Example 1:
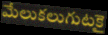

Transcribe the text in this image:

మేలుకలుగుటకై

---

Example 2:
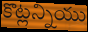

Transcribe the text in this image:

కొట్లన్నియు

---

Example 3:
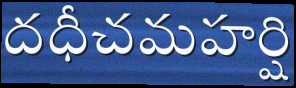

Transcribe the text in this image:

దధీచమహర్షి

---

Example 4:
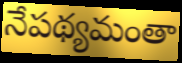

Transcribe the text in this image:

నేపథ్యమంతా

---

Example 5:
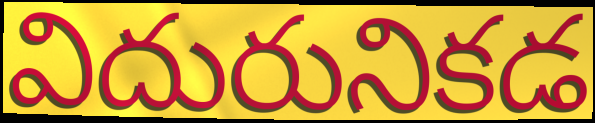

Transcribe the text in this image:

విదురునికడ